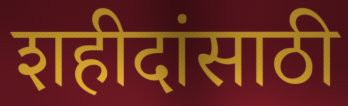
शहीदांसाठी